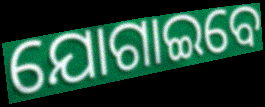
ଯୋଗାଇବେ